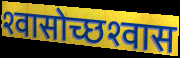
श्वासोच्छश्वास